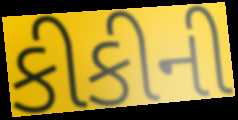
કીકીની